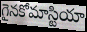
గైనకోమాస్టియా